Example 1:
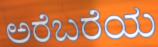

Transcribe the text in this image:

ಅರೆಬರೆಯ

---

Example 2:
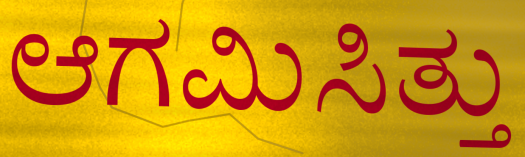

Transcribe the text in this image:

ಆಗಮಿಸಿತ್ತು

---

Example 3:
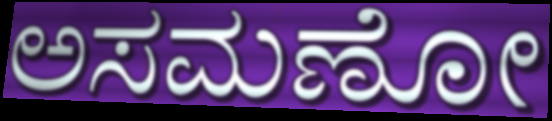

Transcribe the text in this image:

ಅಸಮಣೋ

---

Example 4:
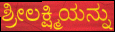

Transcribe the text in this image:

ಶ್ರೀಲಕ್ಷ್ಮಿಯನ್ನು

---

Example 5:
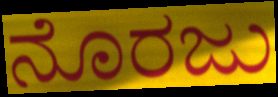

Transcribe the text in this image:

ನೊರಜು